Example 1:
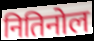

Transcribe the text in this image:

नितिनोल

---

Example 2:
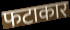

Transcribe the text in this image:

फटाकार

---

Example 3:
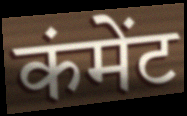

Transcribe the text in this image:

कंमेंट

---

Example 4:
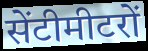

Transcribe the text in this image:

सेंटीमीटरों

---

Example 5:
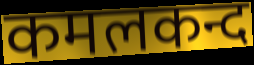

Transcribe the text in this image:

कमलकन्द